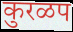
कुरळप